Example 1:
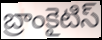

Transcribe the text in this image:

బ్రాంకైటిస్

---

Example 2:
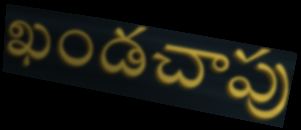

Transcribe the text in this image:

ఖండచాపు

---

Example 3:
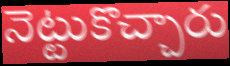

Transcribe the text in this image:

నెట్టుకొచ్చారు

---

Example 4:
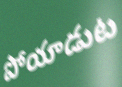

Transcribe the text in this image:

పోయాడుట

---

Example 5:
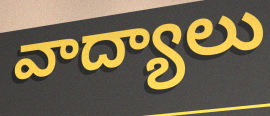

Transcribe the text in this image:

వాద్యాలు